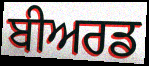
ਬੀਅਰਡ